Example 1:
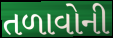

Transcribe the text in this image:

તળાવોની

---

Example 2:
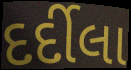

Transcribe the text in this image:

દર્દીલા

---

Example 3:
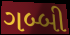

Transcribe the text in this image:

ગબ્બી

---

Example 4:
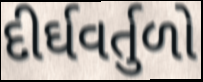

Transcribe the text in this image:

દીર્ઘવર્તુળો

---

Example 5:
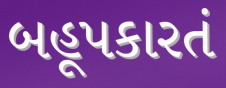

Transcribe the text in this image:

બહૂપકારતં